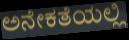
ಅನೇಕತೆಯಲ್ಲಿ